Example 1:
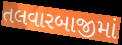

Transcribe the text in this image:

તલવારબાજીમાં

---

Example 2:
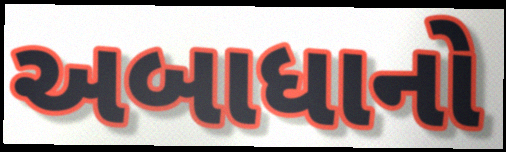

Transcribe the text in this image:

અબાધાનો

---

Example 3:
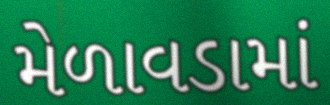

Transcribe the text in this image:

મેળાવડામાં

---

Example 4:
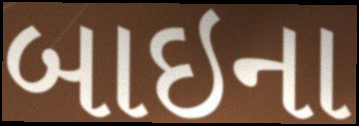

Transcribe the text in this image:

બાઇના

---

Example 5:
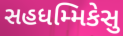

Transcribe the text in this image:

સહધમ્મિકેસુ